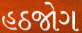
હઠજોગ